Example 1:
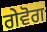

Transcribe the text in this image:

ਗੇਵੋਗ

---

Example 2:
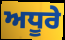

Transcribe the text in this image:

ਅਧੂਰੇ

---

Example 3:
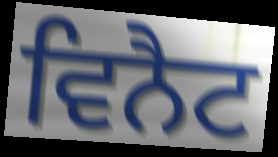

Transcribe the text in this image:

ਵਿਨੈਟ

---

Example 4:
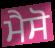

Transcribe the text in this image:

ਮੈਸੋ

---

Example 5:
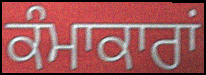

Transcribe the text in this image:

ਕੰਮਾਕਾਰਾਂ